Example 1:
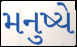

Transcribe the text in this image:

મનુષ્યે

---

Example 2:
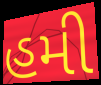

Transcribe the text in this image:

હમી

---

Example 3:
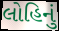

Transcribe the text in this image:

લોહિનું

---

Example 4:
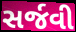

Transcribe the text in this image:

સર્જવી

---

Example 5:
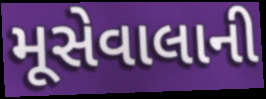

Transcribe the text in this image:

મૂસેવાલાની